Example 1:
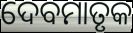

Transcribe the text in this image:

ଦେବମାତୃକ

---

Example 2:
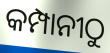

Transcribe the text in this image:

କମ୍ପାନୀଠୁ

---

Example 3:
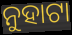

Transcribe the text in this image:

ନୁହାଟା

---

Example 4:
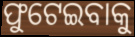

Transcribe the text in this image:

ଫୁଟେଇବାକୁ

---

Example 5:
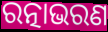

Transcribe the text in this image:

ରତ୍ନାଭରଣ